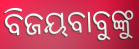
ବିଜୟବାବୁଙ୍କୁ